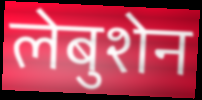
लेबुशेन